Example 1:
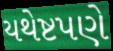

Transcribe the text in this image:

યથેષ્ટપણે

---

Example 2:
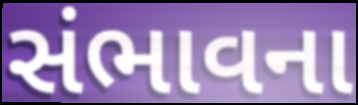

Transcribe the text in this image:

સંભાવના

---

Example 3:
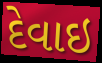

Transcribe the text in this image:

દેવાઇ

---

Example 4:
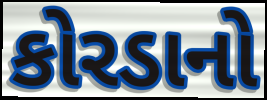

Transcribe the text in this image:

કોરડાનો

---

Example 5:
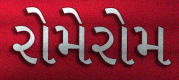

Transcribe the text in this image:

રોમેરોમ